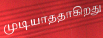
முடியாததாகிறது